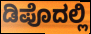
ಡಿಪೊದಲ್ಲಿ